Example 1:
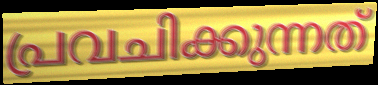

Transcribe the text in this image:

പ്രവചിക്കുന്നത്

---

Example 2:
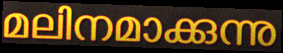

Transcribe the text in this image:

മലിനമാക്കുന്നു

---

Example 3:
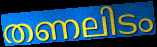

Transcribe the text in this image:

തണലിടം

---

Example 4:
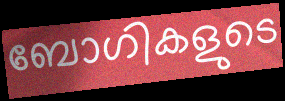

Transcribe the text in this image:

ബോഗികളുടെ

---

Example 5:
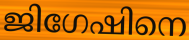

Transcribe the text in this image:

ജിഗേഷിനെ